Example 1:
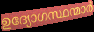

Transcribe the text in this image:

ഉദ്യോഗസ്ഥന്മാർ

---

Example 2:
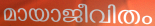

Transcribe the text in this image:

മായാജീവിതം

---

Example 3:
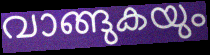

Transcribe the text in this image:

വാങ്ങുകയും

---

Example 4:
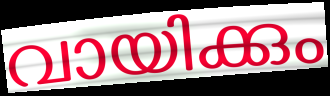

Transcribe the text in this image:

വായിക്കും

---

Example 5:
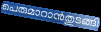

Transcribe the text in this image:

പെരുമാറാൻതുടങ്ങി